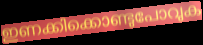
ഇണക്കിക്കൊണ്ടുപോവുക